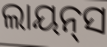
ଲାୟନ୍‌ସ